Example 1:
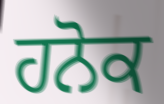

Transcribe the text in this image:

ਹਨੋਕ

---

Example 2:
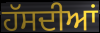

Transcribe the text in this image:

ਹੱਸਦੀਆਂ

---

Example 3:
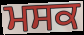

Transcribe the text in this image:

ਮਸਕ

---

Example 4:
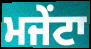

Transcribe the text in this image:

ਮਜੇਂਟਾ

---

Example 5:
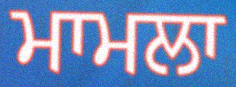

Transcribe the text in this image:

ਮਾਮਲਾ